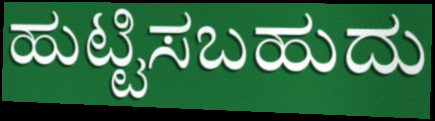
ಹುಟ್ಟಿಸಬಹುದು